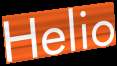
Helio